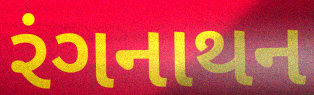
રંગનાથન